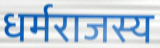
धर्मराजस्य